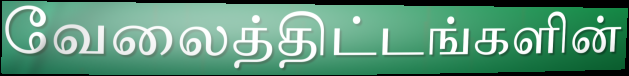
வேலைத்திட்டங்களின்